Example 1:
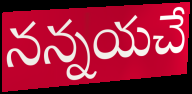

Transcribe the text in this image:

నన్నయచే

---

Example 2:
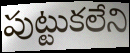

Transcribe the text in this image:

పుట్టుకలేని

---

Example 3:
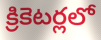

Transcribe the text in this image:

క్రికెటర్లలో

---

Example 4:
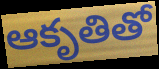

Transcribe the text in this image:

ఆకృతితో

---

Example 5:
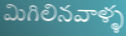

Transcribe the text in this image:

మిగిలినవాళ్ళ